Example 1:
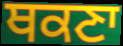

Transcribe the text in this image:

ਥਕਣਾ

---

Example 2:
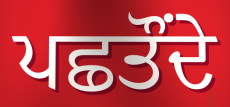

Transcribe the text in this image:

ਪਛਤੌਂਦੇ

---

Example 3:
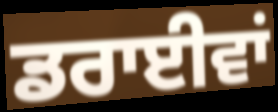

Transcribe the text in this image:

ਡਰਾਈਵਾਂ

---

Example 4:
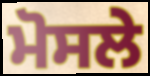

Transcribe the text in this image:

ਮੋਸਲੇ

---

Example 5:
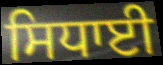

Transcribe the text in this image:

ਸਿਧਾਈ